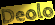
Deolo